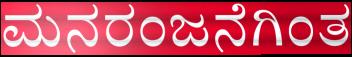
ಮನರಂಜನೆಗಿಂತ